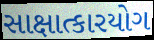
સાક્ષાત્કારયોગ